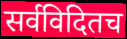
सर्वविदितच